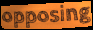
opposing